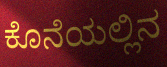
ಕೊನೆಯಲ್ಲಿನ